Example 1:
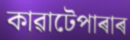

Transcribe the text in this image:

কাৱাটেপাৰাৰ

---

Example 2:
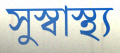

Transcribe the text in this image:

সুস্বাস্থ্য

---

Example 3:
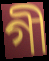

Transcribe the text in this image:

গী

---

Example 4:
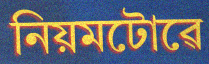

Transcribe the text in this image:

নিয়মটোৱে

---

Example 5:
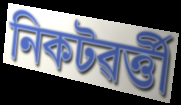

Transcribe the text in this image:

নিকটৱৰ্ত্তী